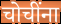
चोचींना